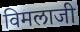
विमलाजी